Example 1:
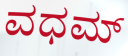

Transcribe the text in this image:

ವಧಮ್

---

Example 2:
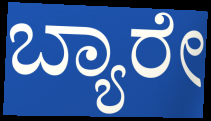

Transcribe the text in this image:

ಬ್ಯಾರೇ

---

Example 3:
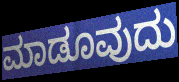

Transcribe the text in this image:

ಮಾಡೂವುದು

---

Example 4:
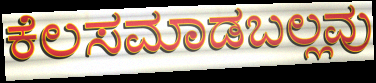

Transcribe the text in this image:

ಕೆಲಸಮಾಡಬಲ್ಲವು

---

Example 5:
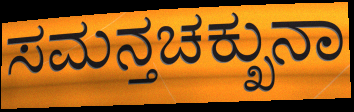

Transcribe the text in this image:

ಸಮನ್ತಚಕ್ಖುನಾ